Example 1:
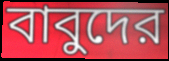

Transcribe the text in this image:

বাবুদের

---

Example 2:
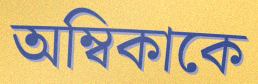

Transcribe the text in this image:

অম্বিকাকে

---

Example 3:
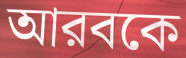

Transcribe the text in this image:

আরবকে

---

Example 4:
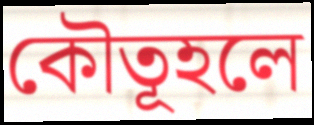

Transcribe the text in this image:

কৌতূহলে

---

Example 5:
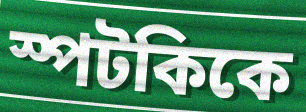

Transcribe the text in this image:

স্পটকিকে